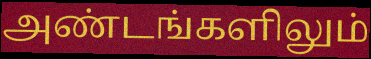
அண்டங்களிலும்